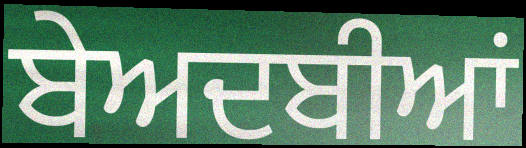
ਬੇਅਦਬੀਆਂ